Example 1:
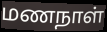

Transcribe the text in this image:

மணநாள்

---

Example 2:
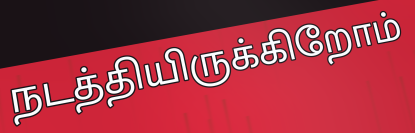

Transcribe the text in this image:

நடத்தியிருக்கிறோம்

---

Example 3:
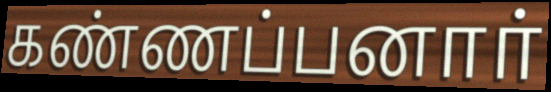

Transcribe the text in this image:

கண்ணப்பனார்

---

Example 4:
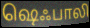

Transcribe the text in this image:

ஷெஃபாலி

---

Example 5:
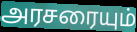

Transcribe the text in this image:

அரசரையும்